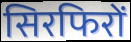
सिरफिरों